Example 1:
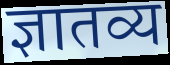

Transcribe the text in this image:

ज्ञातव्य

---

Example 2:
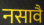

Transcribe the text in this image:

नसावै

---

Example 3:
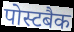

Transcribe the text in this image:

पोस्टबैक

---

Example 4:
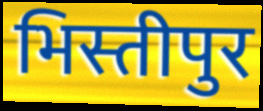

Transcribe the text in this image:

भिस्तीपुर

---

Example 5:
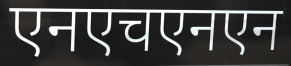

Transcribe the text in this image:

एनएचएनएन